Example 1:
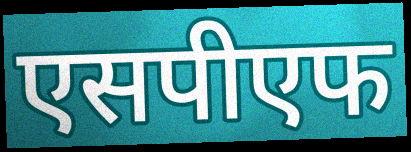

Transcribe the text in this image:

एसपीएफ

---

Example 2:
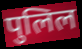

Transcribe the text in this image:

पुलिल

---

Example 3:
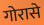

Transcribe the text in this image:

गोरासे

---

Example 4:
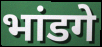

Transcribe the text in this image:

भांडगे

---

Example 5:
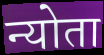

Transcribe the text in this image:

न्योता